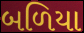
બળિયા